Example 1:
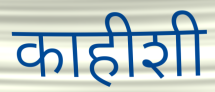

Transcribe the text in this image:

काहीशी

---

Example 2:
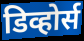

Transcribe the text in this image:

डिव्होर्स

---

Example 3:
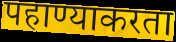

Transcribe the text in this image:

पहाण्याकरता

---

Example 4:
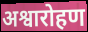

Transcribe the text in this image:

अश्वारोहण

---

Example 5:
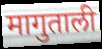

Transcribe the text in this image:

मागुताली